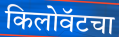
किलोवॅटचा